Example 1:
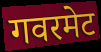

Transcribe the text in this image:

गवरमेट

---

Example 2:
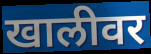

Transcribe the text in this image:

खालीवर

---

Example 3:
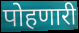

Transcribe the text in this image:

पोहणारी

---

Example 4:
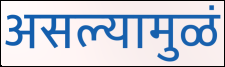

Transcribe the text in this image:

असल्यामुळं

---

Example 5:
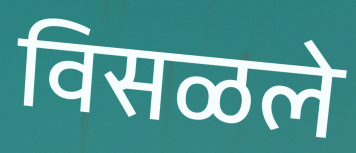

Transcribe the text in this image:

विसळले